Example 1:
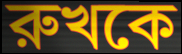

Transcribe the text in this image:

রুখকে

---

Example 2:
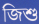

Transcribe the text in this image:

জিশু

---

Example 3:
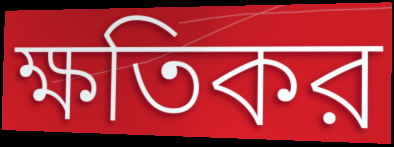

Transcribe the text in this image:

ক্ষতিকর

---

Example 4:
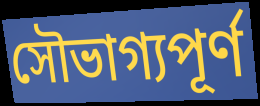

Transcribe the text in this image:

সৌভাগ্যপূর্ণ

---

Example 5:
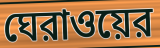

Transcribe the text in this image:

ঘেরাওয়ের